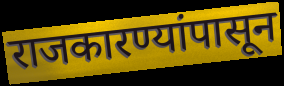
राजकारण्यांपासून